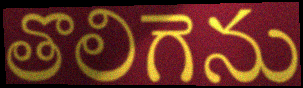
తొలిగెను